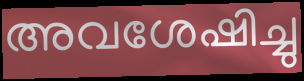
അവശേഷിച്ചു